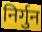
निर्गुन